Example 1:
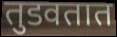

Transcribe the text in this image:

तुडवतात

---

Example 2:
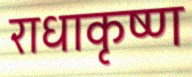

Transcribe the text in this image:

राधाकृष्ण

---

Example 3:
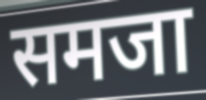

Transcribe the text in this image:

समजा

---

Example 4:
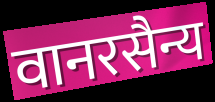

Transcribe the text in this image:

वानरसैन्य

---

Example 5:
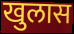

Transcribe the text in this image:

खुलास